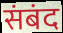
संबंद